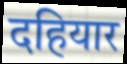
दहियार